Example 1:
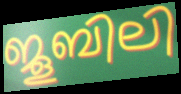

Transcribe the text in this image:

ജൂബിലി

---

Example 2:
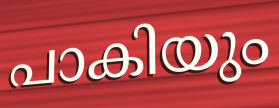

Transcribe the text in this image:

പാകിയും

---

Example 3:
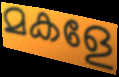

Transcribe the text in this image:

മകളേ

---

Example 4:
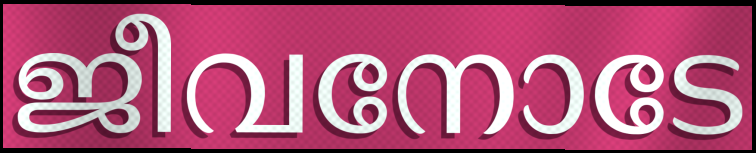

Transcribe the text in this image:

ജീവനോടേ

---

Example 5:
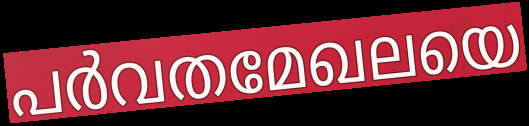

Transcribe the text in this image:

പർവതമേഖലയെ